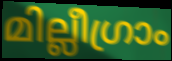
മില്ലീഗ്രാം